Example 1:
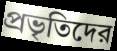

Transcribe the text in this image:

প্রভৃতিদের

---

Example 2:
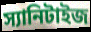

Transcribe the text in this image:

স্যানিটাইজ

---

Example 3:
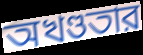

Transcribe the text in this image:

অখণ্ডতার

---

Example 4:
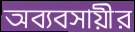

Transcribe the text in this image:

অব্যবসায়ীর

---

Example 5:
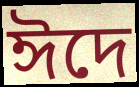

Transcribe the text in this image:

ঈদে